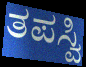
ತಪಸ್ವಿ